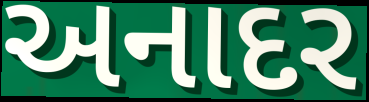
અનાદર